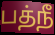
பத்நீ